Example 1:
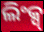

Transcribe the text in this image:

ଲିଂକ୍ସ୍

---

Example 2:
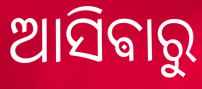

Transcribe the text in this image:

ଆସିଵାରୁ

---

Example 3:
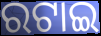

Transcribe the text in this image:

ରଟାଇ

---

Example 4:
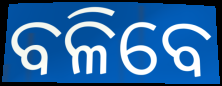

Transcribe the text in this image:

ବଳିବେ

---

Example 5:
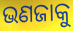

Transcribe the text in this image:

ଭଣଜାକୁ